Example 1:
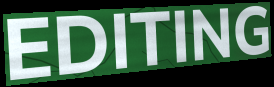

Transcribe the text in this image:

EDITING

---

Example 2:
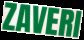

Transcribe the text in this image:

ZAVERI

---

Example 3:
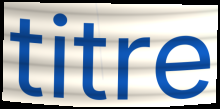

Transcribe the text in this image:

titre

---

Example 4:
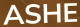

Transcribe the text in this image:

ASHE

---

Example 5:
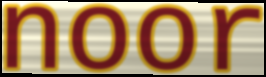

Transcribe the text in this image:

noor